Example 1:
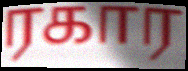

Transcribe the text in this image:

ரகார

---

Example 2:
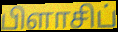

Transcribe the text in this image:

பிளாசிப்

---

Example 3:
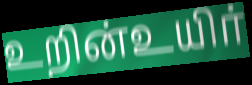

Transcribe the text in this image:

உறின்உயிர்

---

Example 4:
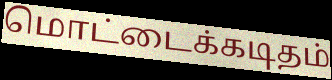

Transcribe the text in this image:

மொட்டைக்கடிதம்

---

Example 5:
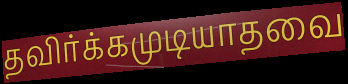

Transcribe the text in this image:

தவிர்க்கமுடியாதவை